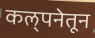
कल्पनेतून